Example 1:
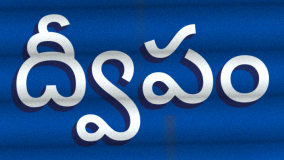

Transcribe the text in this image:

ద్వీపం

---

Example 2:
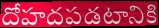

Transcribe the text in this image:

దోహదపడటానికి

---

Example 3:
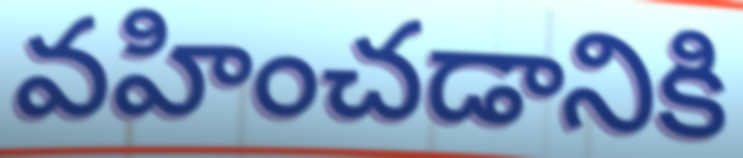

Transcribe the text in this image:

వహించడానికి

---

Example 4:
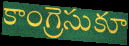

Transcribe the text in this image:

కాంగ్రెసుకూ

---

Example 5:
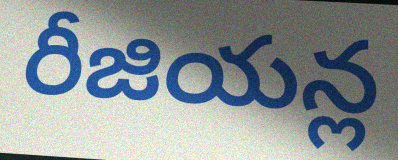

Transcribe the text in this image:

రీజియన్ల